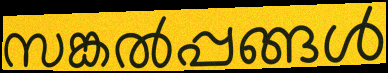
സങ്കൽപ്പങ്ങൾ